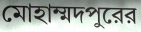
মোহাম্মদপুরের